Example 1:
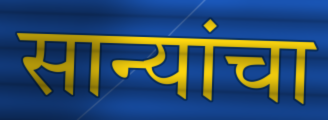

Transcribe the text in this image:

सान्यांचा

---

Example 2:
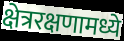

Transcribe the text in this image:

क्षेत्ररक्षणामध्ये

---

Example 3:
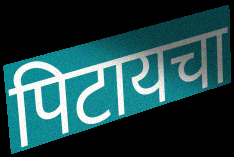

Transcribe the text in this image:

पिटायचा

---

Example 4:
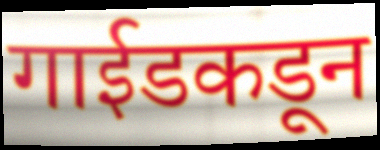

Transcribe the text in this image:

गाईडकडून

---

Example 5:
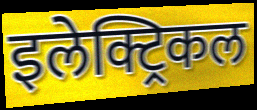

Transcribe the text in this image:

इलेक्ट्रिकल